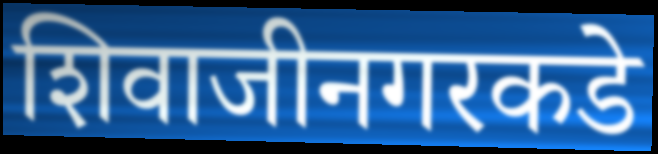
शिवाजीनगरकडे